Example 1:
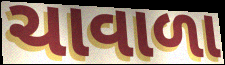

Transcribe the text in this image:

ચાવાળા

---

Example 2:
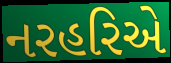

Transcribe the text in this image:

નરહરિએ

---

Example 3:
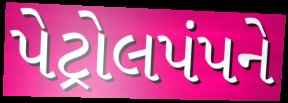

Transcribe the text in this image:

પેટ્રોલપંપને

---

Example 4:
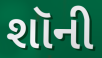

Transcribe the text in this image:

શૉની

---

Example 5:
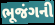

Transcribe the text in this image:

ભૂજંગની